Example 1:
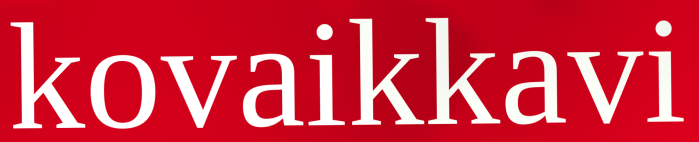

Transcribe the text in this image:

kovaikkavi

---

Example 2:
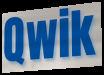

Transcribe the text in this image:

Qwik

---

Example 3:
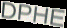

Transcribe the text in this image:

DPHE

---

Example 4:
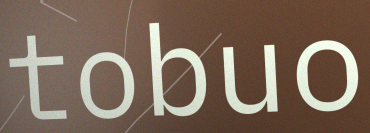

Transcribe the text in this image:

tobuo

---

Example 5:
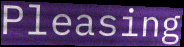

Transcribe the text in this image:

Pleasing